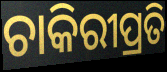
ଚାକିରୀପ୍ରତି